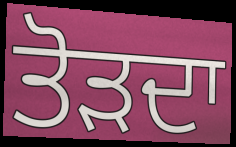
ਤੋੜਦਾ